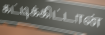
கட்டிக்கிட்டான்